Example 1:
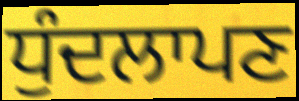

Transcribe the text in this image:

ਧੁੰਦਲਾਪਣ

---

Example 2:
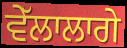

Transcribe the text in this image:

ਵੇੱਲਾਲਾਗੇ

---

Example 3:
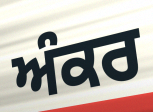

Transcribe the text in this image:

ਅੰਕਰ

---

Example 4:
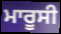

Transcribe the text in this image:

ਮਾਰੂਸੀ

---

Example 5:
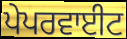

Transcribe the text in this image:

ਪੇਪਰਵਾਈਟ